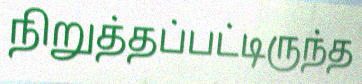
நிறுத்தப்பட்டிருந்த